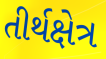
તીર્થક્ષેત્ર